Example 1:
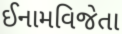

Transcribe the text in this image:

ઈનામવિજેતા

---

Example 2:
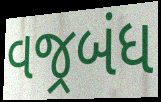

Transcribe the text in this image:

વજ્રબંધ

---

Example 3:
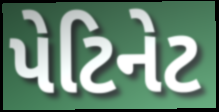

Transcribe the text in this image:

પેટિનેટ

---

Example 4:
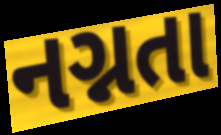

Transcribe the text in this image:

નગ્નતા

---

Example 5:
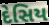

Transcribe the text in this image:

દેસિય